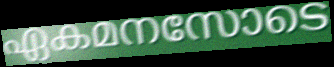
ഏകമനസോടെ